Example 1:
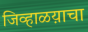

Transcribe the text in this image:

जिव्हाळय़ाचा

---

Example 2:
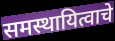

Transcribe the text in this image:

समस्थायित्वाचे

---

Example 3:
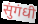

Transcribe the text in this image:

सुंगंधी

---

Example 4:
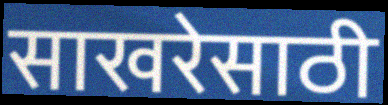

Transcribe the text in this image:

साखरेसाठी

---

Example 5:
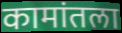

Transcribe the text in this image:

कामांतला